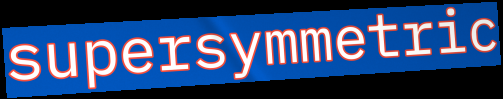
supersymmetric